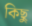
কিছু